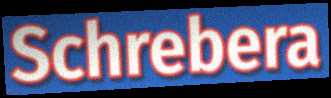
Schrebera